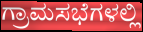
ಗ್ರಾಮಸಭೆಗಳಲ್ಲಿ